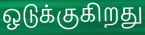
ஒடுக்குகிறது